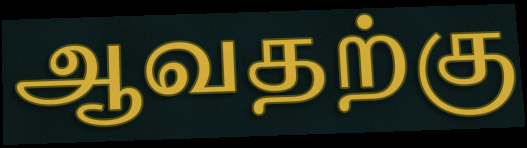
ஆவதற்கு